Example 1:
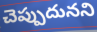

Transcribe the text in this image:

చెప్పుదునని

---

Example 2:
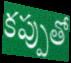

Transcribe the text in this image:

కప్పుతో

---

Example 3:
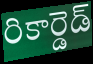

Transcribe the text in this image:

రికార్డెడ్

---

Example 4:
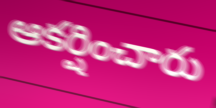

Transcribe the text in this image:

ఆకర్షించారు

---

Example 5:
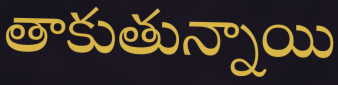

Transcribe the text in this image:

తాకుతున్నాయి